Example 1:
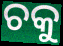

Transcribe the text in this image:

ଚକୁ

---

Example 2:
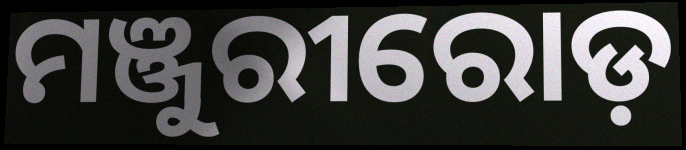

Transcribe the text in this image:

ମଞ୍ଜୁରୀରୋଡ଼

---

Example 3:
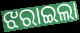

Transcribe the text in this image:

ଝରାଇଲା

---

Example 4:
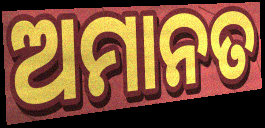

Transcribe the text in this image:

ଅମାନତ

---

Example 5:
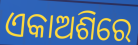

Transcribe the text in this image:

ଏକାଅଶିରେ